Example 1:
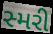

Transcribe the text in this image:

સ્મરી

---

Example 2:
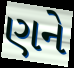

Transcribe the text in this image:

ણને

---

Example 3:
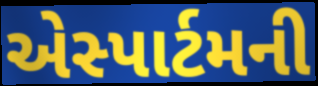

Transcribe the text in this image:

એસ્પાર્ટમની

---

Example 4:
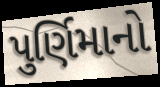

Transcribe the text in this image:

પુર્ણિમાનો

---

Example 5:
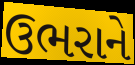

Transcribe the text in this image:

ઉભરાને